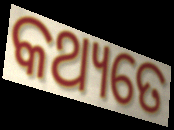
କଥ୍ୟତେ